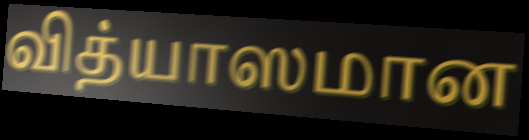
வித்யாஸமான